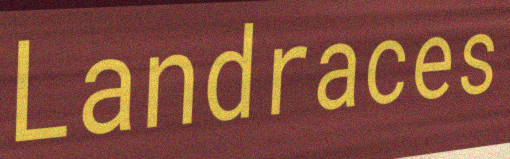
Landraces